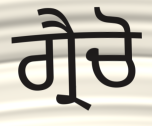
ਗ੍ਰੈਚੋ